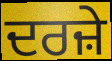
ਦਰਜ਼ੇ